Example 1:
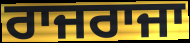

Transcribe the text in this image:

ਰਾਜਰਾਜਾ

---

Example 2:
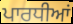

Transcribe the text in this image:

ਪਾਰਧੀਆਂ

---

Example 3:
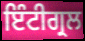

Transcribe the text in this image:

ਇੰਟੀਗ੍ਰਲ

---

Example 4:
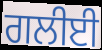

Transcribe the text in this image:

ਗਲੀਈ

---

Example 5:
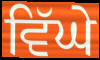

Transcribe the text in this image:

ਵਿੱਘੇ